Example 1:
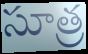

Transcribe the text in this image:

సూత్ర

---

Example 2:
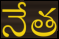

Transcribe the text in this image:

నేత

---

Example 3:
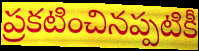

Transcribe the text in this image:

ప్రకటించినప్పటికీ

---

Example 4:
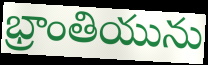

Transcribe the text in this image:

భ్రాంతియును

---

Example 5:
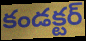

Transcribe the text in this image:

కండక్టర్